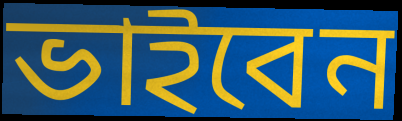
ভাইবেন